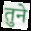
तुने